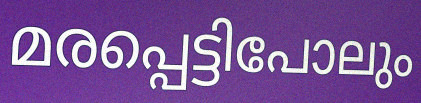
മരപ്പെട്ടിപോലും